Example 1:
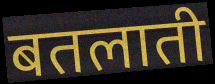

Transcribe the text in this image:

बतलाती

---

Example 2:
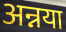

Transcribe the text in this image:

अन्नया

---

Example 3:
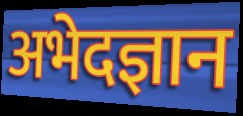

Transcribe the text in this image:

अभेदज्ञान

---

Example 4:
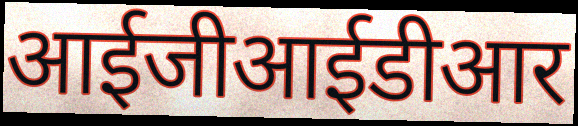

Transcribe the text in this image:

आईजीआईडीआर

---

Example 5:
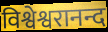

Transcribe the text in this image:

विश्वेश्वरानन्द